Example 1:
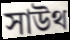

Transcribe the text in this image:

সাউথ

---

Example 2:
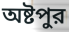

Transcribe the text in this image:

অষ্টপুর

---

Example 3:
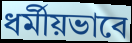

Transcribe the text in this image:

ধর্মীয়ভাবে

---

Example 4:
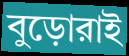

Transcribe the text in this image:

বুড়োরাই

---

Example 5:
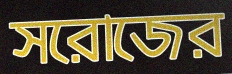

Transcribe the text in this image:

সরোজের